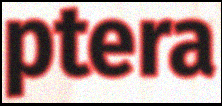
ptera